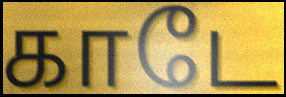
காடே